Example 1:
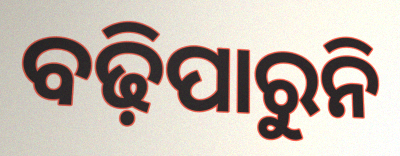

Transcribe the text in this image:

ବଢ଼ିପାରୁନି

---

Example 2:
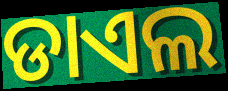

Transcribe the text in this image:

ଡାଏଲ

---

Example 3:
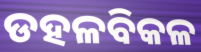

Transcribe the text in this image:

ଡହଳବିକଳ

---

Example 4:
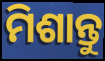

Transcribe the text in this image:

ମିଶାନ୍ତୁ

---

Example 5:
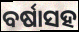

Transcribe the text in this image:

ବର୍ଷାସହ